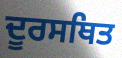
ਦੂਰਸਥਿਤ